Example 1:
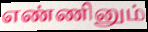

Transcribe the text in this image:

எண்ணினும்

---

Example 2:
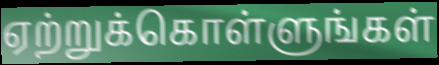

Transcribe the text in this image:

ஏற்றுக்கொள்ளுங்கள்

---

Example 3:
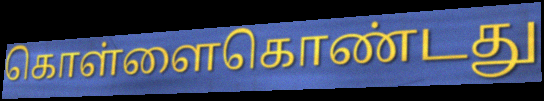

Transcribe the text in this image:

கொள்ளைகொண்டது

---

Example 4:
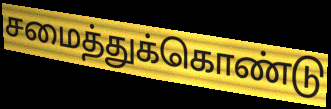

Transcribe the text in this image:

சமைத்துக்கொண்டு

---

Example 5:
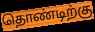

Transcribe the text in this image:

தொண்டிற்கு